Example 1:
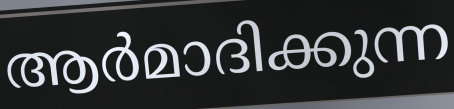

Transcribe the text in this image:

ആർമാദിക്കുന്ന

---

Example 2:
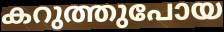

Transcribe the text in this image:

കറുത്തുപോയ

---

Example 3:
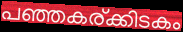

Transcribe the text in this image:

പഞ്ഞകര്ക്കിടകം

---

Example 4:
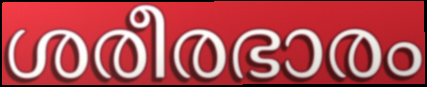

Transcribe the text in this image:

ശരീരഭാരം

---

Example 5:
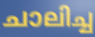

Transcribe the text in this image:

ചാലിച്ച